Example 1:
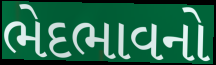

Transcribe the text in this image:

ભેદભાવનો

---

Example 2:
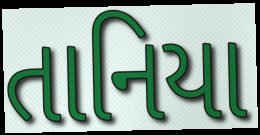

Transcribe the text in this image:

તાનિયા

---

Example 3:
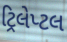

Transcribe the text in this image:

ટ્રિલેપ્ટલ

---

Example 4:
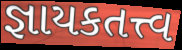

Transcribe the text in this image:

જ્ઞાયકતત્ત્વ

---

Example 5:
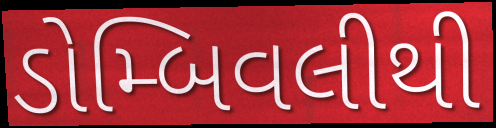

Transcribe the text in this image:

ડોમ્બિવલીથી